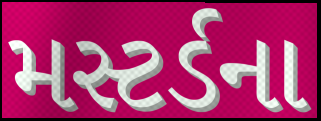
મસ્ટર્ડના